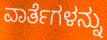
ವಾರ್ತೆಗಳನ್ನು